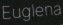
Euglena